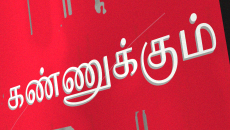
கண்ணுக்கும்